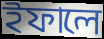
ইফালে